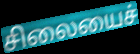
சிலையைச்